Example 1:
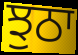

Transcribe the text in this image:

ਝੁਠਾ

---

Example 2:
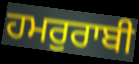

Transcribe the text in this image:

ਹਮਰੁਰਾਬੀ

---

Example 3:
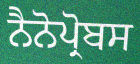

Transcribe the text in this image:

ਨੈਨੋਪ੍ਰੋਬਸ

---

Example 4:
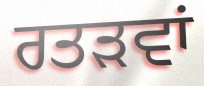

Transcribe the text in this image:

ਰਤੜਵਾਂ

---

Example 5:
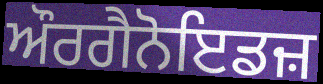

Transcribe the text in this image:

ਔਰਗੈਨੋਇਡਜ਼